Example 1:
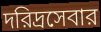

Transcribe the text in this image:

দরিদ্রসেবার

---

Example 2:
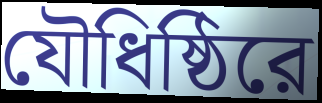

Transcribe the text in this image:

যৌধিষ্ঠিরে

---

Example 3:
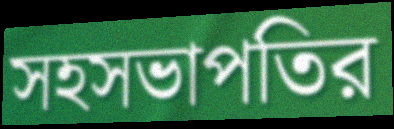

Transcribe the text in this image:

সহসভাপতির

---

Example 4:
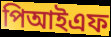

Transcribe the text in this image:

পিআইএফ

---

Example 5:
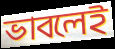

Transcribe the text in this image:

ভাবলেই